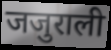
जजुराली